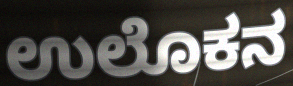
ಉಲೊಕನ